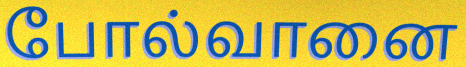
போல்வானை